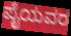
ಪೈಯವರ